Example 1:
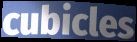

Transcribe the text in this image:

cubicles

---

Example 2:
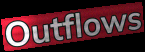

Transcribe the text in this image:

Outflows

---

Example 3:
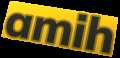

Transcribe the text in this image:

amih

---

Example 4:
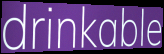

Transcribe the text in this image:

drinkable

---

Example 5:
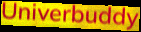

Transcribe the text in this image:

Univerbuddy